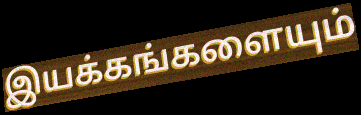
இயக்கங்களையும்